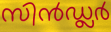
സിൻഡ്ലർ